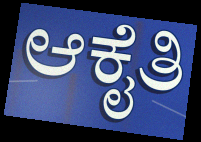
ಆಕೈತಿ